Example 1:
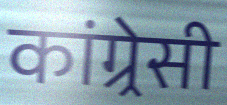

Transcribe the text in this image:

कांग्र्रेसी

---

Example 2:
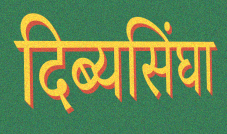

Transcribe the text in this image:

दिब्यसिंघा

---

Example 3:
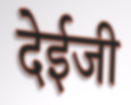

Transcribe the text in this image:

देईजी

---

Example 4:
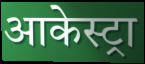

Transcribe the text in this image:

आकेस्ट्रा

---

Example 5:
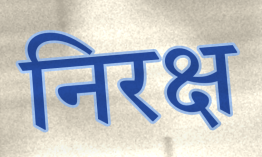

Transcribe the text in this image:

निरक्ष